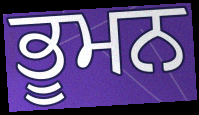
ਭੂਮਨ